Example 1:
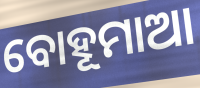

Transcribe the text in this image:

ବୋହୂମାଆ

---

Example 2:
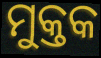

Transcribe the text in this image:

ମୁକ୍ତକ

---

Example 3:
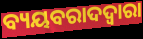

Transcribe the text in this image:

ବ୍ୟୟବରାଦଦ୍ଵାରା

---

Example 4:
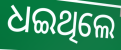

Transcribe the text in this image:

ଧଇଥିଲେ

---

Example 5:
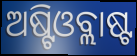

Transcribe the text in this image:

ଅଷ୍ଟିଓବ୍ଲାଷ୍ଟ